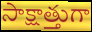
సాక్షాత్తుగా